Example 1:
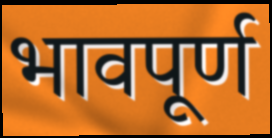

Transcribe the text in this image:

भावपूर्ण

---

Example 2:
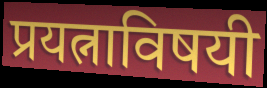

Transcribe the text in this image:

प्रयत्नाविषयी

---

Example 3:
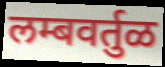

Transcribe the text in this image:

लम्बवर्तुळ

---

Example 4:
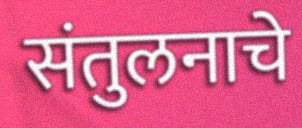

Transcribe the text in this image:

संतुलनाचे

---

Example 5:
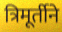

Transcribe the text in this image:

त्रिमूर्तीने